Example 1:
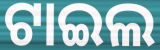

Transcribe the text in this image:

ଟାଇଲ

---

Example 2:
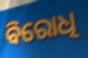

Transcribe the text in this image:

ବିରୋଧି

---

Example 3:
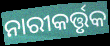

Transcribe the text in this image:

ନାରୀକର୍ତ୍ତୃକ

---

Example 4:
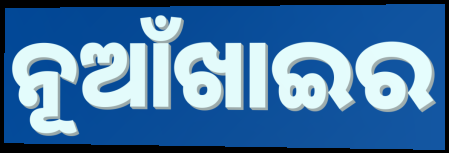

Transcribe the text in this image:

ନୂଆଁଖାଇର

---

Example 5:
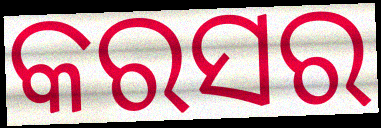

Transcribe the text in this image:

କରସର